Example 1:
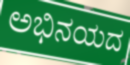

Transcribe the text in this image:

ಅಭಿನಯದ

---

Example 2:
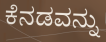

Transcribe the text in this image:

ಕೆನಡವನ್ನು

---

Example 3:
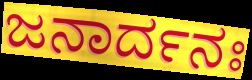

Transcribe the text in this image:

ಜನಾರ್ದನಃ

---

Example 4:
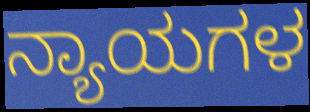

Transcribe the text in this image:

ನ್ಯಾಯಗಳ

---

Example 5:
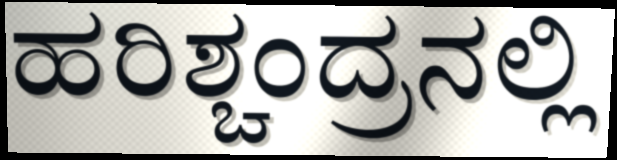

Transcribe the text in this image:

ಹರಿಶ್ಚಂದ್ರನಲ್ಲಿ